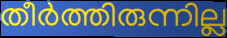
തീർത്തിരുന്നില്ല